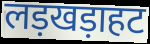
लड़खड़ाहट